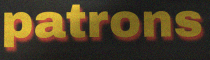
patrons